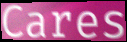
Cares